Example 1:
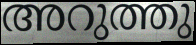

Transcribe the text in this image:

അറുത്തു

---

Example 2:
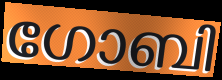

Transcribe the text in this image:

ഗോബി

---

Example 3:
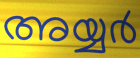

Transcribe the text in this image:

അയ്യർ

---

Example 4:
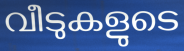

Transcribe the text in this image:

വീടുകളുടെ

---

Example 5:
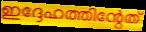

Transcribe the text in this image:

ഇദ്ദേഹത്തിന്റേത്